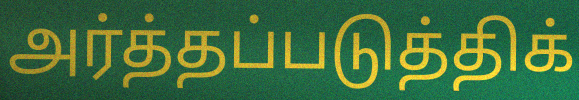
அர்த்தப்படுத்திக்